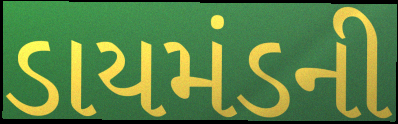
ડાયમંડની